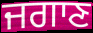
ਜਗਾਣ